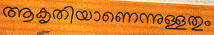
ആകൃതിയാണെന്നുള്ളതും